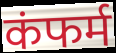
कंफर्म